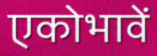
एकोभावें